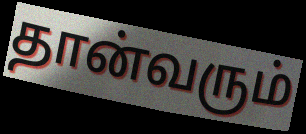
தான்வரும்